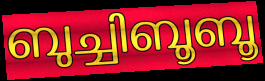
ബുച്ചിബൂബൂ